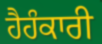
ਹੈਹੰਕਾਰੀ